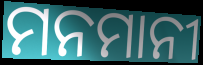
ମନମାନୀ